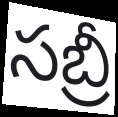
సబ్రీ